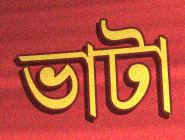
ভাটা